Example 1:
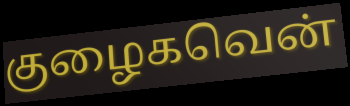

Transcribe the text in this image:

குழைகவென்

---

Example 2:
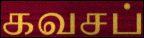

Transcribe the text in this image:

கவசப்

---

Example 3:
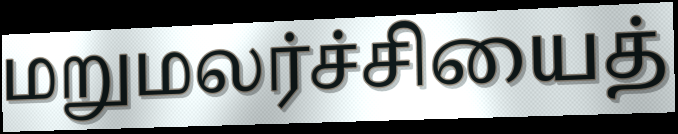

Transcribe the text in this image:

மறுமலர்ச்சியைத்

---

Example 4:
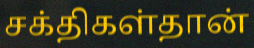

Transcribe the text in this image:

சக்திகள்தான்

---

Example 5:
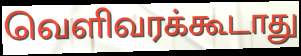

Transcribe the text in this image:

வெளிவரக்கூடாது